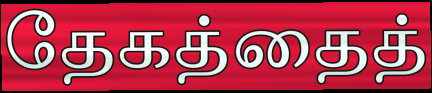
தேகத்தைத்